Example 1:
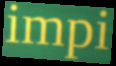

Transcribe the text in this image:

impi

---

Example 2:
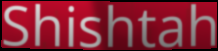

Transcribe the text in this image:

Shishtah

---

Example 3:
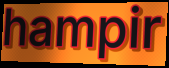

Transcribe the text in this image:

hampir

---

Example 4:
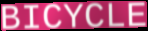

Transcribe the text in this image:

BICYCLE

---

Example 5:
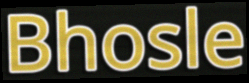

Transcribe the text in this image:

Bhosle